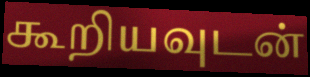
கூறியவுடன்